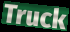
Truck